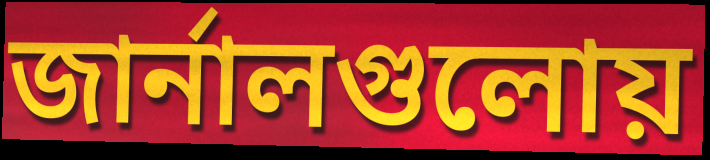
জার্নালগুলোয়